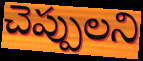
చెప్పులని